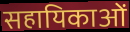
सहायिकाओं